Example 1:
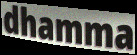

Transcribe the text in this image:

dhamma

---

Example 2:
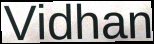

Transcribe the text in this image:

Vidhan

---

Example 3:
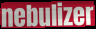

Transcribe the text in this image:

nebulizer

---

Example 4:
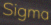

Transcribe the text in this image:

Sigma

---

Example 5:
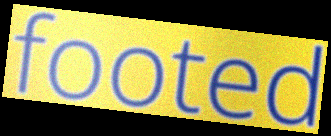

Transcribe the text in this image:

footed